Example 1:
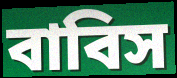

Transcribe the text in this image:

বাবিস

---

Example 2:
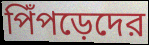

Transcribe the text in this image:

পিঁপড়েদের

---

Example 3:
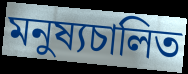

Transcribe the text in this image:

মনুষ্যচালিত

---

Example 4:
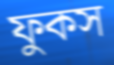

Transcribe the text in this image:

ফুকস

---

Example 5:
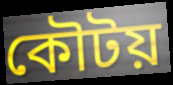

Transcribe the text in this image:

কৌটয়